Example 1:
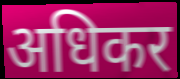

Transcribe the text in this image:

अधिकर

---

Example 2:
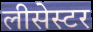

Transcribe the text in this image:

लीसेस्टर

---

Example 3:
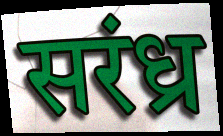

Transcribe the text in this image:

सरंध्र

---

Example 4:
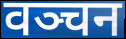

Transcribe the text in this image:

वञ्चन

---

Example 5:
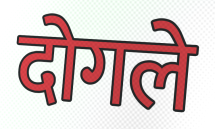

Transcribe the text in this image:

दोगले